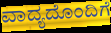
ವಾದ್ಯದೊಂದಿಗೆ